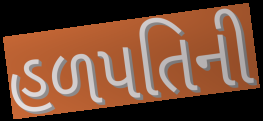
હળપતિની